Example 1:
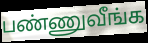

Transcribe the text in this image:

பண்ணுவீங்க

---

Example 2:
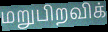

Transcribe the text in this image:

மறுபிறவிக்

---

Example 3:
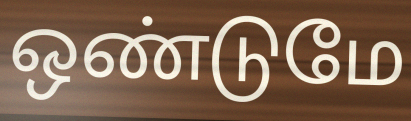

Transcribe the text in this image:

ஒண்டுமே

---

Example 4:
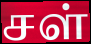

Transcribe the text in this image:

சள்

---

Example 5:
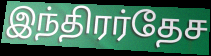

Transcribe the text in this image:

இந்திரர்தேச